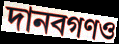
দানবগণও